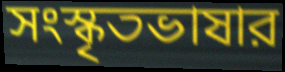
সংস্কৃতভাষার